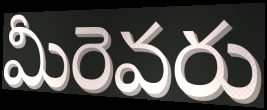
మీరెవరు